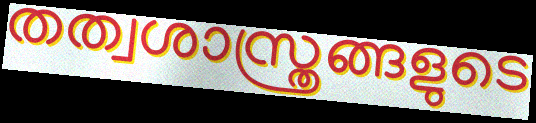
തത്വശാസ്ത്രങ്ങളുടെ